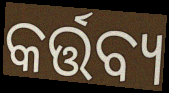
କର୍ତ୍ତବ୍ୟ